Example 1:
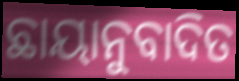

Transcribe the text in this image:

ଛାୟାନୁବାଦିତ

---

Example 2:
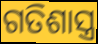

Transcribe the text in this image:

ଗତିଶାସ୍ତ୍ର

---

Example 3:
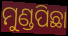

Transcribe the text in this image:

ମୁଣ୍ଡପିଛା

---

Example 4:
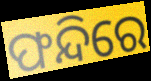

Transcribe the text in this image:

ଫନ୍ଦିରେ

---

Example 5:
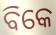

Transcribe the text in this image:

ବିକେ